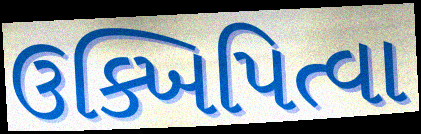
ઉક્ખિપિત્વા